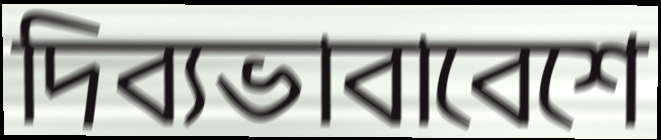
দিব্যভাবাবেশে